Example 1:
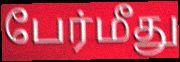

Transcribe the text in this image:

பேர்மீது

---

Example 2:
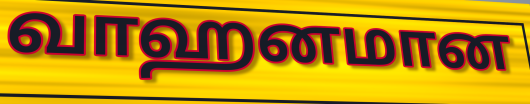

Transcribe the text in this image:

வாஹனமான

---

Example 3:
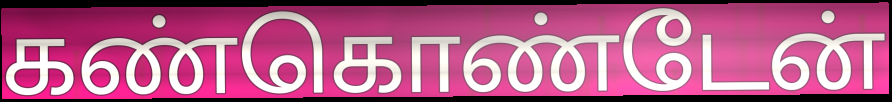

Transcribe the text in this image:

கண்கொண்டேன்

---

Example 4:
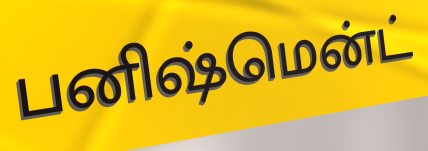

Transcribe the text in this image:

பனிஷ்மென்ட்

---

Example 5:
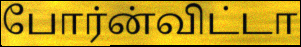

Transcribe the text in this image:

போர்ன்விட்டா